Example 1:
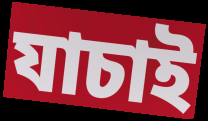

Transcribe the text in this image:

যাচাই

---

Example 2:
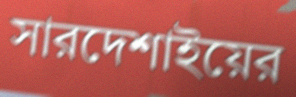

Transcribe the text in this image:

সারদেশাইয়ের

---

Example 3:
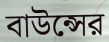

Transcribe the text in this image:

বাউন্সের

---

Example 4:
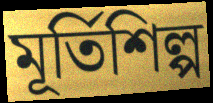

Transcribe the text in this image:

মূর্তিশিল্প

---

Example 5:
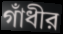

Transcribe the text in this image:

গাঁধীর